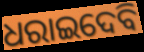
ଧରାଇଦେବି